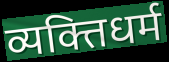
व्यक्तिधर्म